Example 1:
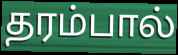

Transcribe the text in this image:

தரம்பால்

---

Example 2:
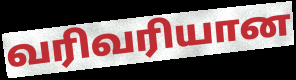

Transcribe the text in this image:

வரிவரியான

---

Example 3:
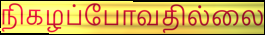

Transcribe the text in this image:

நிகழப்போவதில்லை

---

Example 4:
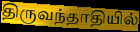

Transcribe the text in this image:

திருவந்தாதியில்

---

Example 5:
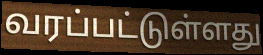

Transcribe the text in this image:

வரப்பட்டுள்ளது